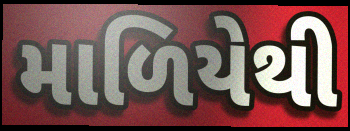
માળિયેથી